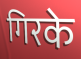
गिरके